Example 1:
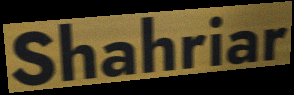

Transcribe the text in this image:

Shahriar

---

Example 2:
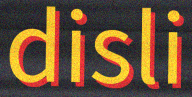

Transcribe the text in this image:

disli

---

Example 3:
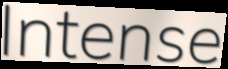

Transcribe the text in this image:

Intense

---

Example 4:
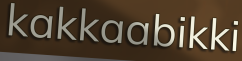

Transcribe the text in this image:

kakkaabikki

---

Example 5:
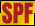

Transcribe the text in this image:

SPF